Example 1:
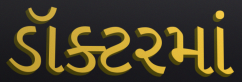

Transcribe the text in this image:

ડૉક્ટરમાં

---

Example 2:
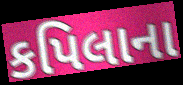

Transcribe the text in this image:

કપિલાના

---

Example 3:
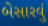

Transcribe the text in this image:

બેસારવું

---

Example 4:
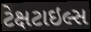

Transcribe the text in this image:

ટેક્ષટાઇલ્સ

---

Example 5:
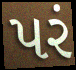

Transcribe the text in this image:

પરં